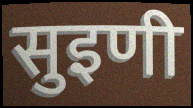
सुइणी